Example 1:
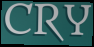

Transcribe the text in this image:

CRY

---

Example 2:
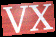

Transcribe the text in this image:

VX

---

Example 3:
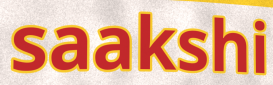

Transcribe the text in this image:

saakshi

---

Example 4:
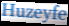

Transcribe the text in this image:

Huzeyfe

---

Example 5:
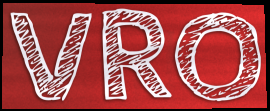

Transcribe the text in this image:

VRO